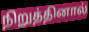
நிறுத்தினால்